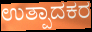
ಉತ್ಪಾದಕರ